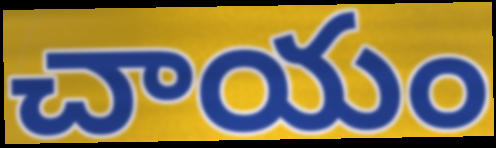
చాయం